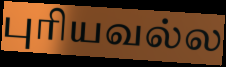
புரியவல்ல